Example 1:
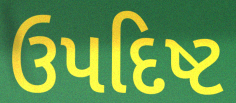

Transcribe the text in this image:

ઉપદિષ્ટ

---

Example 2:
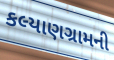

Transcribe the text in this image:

કલ્યાણગ્રામની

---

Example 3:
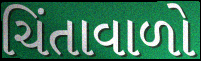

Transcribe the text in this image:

ચિંતાવાળો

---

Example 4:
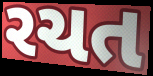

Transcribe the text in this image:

રચત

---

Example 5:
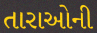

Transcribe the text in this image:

તારાઓની